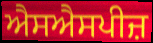
ਐਸਐਸਪੀਜ਼